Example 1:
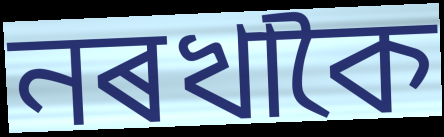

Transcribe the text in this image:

নৰখাকৈ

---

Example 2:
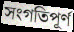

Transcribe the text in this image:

সংগতিপূৰ্ণ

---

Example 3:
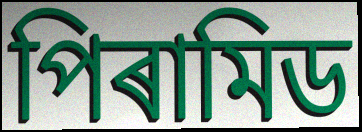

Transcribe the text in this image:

পিৰামিড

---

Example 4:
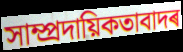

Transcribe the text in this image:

সাম্প্ৰদায়িকতাবাদৰ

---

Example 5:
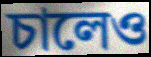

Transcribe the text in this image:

চালেও